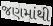
જણમાંથી